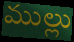
ముల్లు